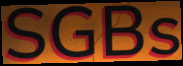
SGBs